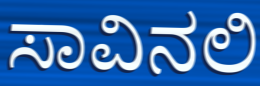
ಸಾವಿನಲಿ